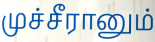
முச்சீரானும்